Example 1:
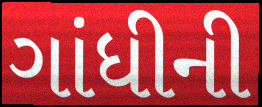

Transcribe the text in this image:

ગાંધીની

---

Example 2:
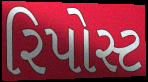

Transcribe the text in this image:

રિપોસ્ટ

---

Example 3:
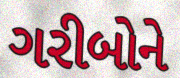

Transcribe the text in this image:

ગરીબોને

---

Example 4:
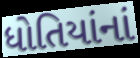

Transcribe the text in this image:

ધોતિયાંનાં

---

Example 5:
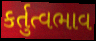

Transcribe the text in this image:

કર્તુત્વભાવ